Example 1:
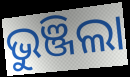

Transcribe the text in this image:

ଭୁଞ୍ଜିଲା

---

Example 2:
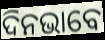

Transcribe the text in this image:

ଦିନଭାବେ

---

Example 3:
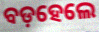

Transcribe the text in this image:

ବଡ଼ହେଲେ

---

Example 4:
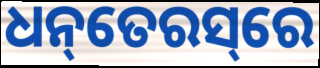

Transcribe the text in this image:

ଧନ୍‌ତେରସ୍‌ରେ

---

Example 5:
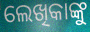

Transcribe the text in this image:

ଲେଖିକାଙ୍କୁ